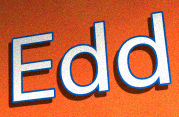
Edd